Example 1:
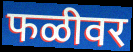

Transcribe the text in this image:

फळीवर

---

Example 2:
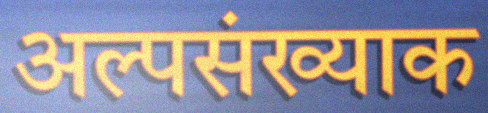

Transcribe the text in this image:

अल्पसंख्याक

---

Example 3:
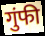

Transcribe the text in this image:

गुंफी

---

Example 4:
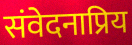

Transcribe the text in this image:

संवेदनाप्रिय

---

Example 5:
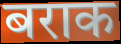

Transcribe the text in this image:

बराक